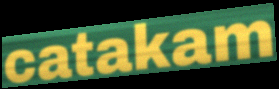
catakam